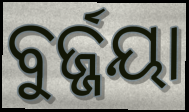
ବୁର୍ଜ୍ଜୟା